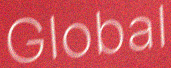
Global